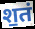
श॒तं